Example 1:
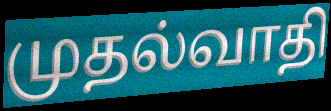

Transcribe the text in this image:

முதல்வாதி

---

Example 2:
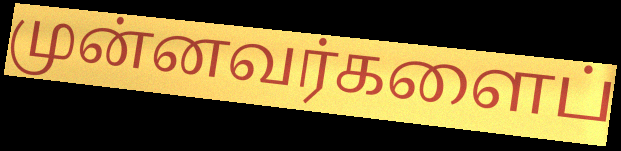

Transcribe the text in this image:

முன்னவர்களைப்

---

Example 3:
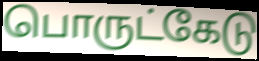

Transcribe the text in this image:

பொருட்கேடு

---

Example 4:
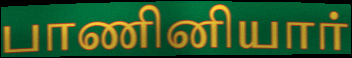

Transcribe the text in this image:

பாணினியார்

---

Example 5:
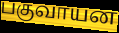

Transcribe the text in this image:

பகுவாயன